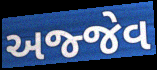
અજ્જેવ